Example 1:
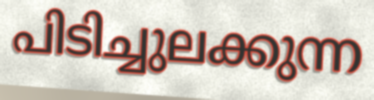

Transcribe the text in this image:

പിടിച്ചുലക്കുന്ന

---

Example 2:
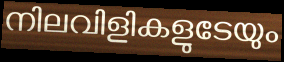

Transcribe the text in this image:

നിലവിളികളുടേയും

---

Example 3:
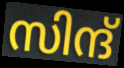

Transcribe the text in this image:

സിന്ദ്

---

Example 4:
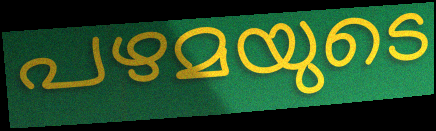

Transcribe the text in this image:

പഴമയുടെ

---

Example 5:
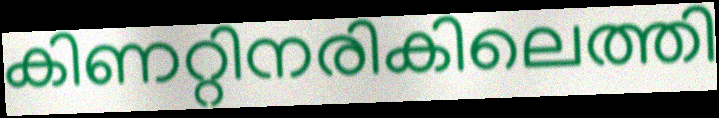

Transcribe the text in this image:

കിണറ്റിനരികിലെത്തി